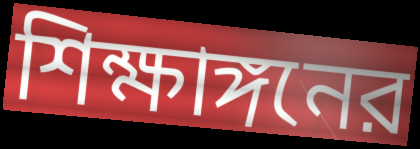
শিক্ষাঙ্গনের